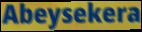
Abeysekera